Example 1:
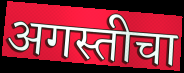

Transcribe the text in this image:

अगस्तीचा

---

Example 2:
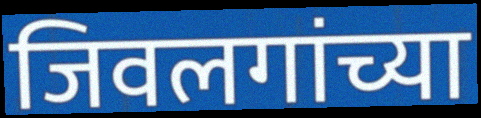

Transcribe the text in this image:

जिवलगांच्या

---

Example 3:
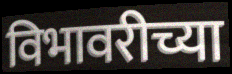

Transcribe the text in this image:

विभावरीच्या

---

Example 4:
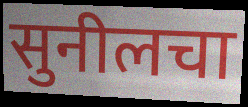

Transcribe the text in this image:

सुनीलचा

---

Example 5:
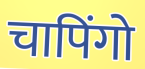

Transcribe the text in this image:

चापिंगो